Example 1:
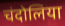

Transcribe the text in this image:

चंदोलिया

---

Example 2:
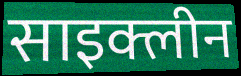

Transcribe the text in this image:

साइक्लीन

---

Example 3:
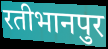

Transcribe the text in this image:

रतीभानपुर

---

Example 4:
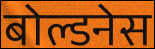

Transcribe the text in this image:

बोल्डनेस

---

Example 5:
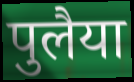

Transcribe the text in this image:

पुलैया